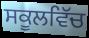
ਸਕੂਲਵਿੱਚ